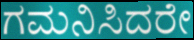
ಗಮನಿಸಿದರೇ